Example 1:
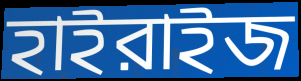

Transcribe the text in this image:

হাইরাইজ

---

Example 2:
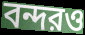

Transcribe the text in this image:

বন্দরও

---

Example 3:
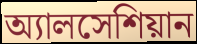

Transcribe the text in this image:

অ্যালসেশিয়ান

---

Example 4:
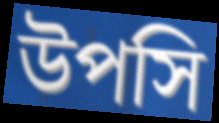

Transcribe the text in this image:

উপসি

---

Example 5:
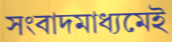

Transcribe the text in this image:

সংবাদমাধ্যমেই